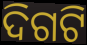
ଦିଗଟି